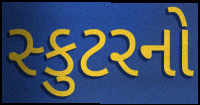
સ્કુટરનો